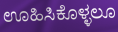
ಊಹಿಸಿಕೊಳ್ಳಲೂ